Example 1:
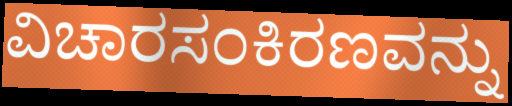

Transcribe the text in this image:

ವಿಚಾರಸಂಕಿರಣವನ್ನು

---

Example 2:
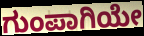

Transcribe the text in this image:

ಗುಂಪಾಗಿಯೇ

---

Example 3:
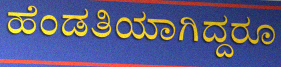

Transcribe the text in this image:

ಹೆಂಡತಿಯಾಗಿದ್ದರೂ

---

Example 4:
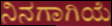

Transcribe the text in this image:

ನಿನಗಾಗಿಯೆ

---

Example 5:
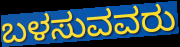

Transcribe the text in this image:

ಬಳಸುವವರು